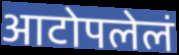
आटोपलेलं